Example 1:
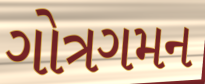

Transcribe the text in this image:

ગોત્રગમન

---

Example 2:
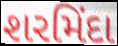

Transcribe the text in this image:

શરમિંદા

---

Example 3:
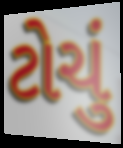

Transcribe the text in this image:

ટોચું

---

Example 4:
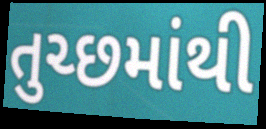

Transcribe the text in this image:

તુચ્છમાંથી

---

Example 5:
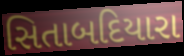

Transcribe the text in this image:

સિતાબદિયારા